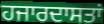
ਹਜਾਰਦਾਸਤਾਂ